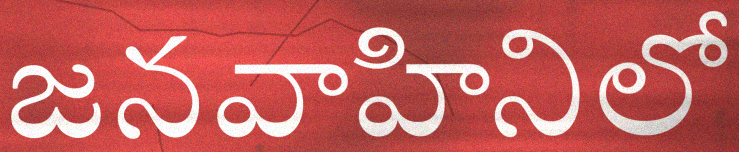
జనవాహినిలో